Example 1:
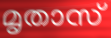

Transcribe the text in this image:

മൃതാസ്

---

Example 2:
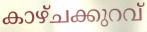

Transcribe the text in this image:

കാഴ്ചക്കുറവ്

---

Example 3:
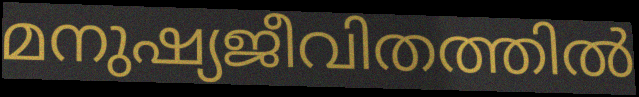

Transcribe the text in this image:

മനുഷ്യജീവിതത്തിൽ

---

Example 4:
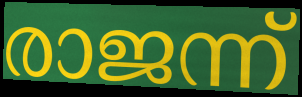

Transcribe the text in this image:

രാജന്ന്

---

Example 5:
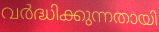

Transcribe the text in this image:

വർദ്ധിക്കുന്നതായി